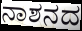
ನಾಶನದ